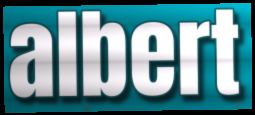
albert